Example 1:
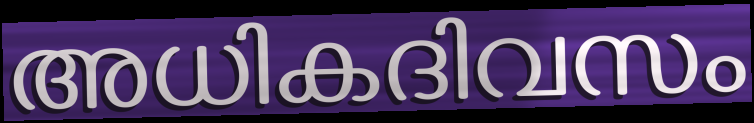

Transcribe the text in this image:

അധികദിവസം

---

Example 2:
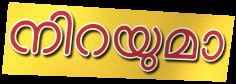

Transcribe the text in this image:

നിറയുമാ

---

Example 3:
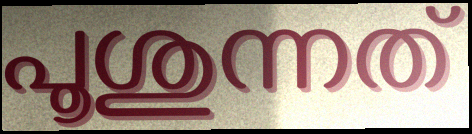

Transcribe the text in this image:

പൂശുന്നത്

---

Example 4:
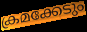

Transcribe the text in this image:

ക്രമക്കേടും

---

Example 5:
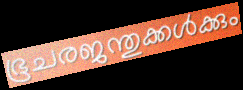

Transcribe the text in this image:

ഭൂചരജന്തുക്കൾക്കും